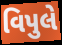
વિપુલે